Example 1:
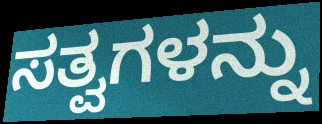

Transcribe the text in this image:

ಸತ್ವಗಳನ್ನು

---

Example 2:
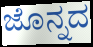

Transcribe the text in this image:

ಜೊನ್ನದ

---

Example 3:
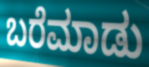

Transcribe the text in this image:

ಬರೆಮಾಡು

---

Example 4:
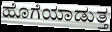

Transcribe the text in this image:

ಹೊಗೆಯಾಡುತ್ತ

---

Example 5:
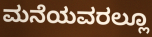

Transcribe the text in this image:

ಮನೆಯವರಲ್ಲೂ